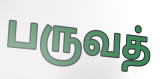
பருவத்